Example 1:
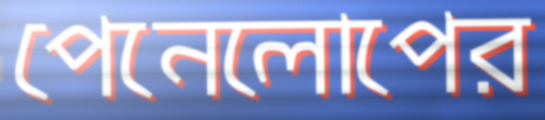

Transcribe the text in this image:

পেনেলোপের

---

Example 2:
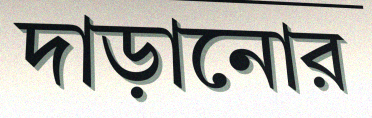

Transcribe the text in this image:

দাড়ানোর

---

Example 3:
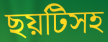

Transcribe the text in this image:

ছয়টিসহ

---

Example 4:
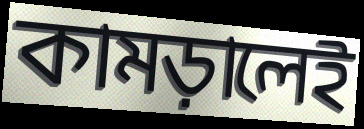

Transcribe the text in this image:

কামড়ালেই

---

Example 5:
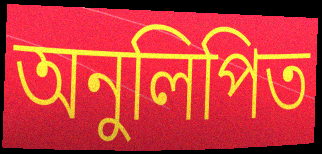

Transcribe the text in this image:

অনুলিপিত